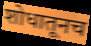
शोधातूनच